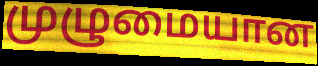
முழுமையான